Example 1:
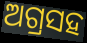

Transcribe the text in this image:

ଅଗ୍ରସହ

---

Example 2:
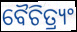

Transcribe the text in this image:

ବୈଚିତ୍ର୍ୟଂ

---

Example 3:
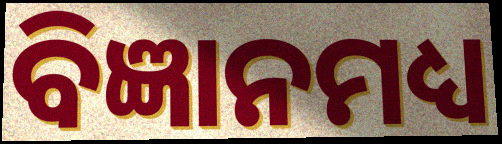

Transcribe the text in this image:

ବିଜ୍ଞାନମଧ୍ୟ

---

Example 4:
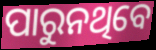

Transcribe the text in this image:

ପାରୁନଥିବେ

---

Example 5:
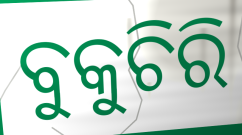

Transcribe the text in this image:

ବୁକୁଚିରି